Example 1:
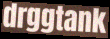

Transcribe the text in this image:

drggtank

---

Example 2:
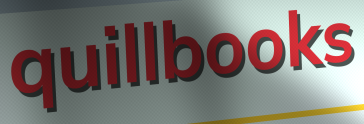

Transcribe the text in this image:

quillbooks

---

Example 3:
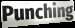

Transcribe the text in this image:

Punching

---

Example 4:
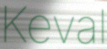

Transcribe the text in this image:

Keval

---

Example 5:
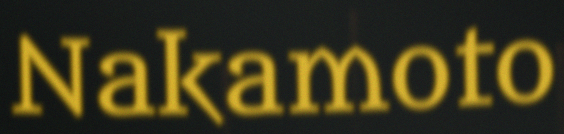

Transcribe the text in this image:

Nakamoto